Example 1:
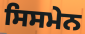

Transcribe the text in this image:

ਸਿਸਮੇਨ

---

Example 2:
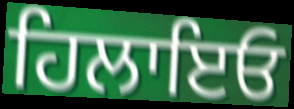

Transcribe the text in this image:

ਹਿਲਾਇਓ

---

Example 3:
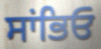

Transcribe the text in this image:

ਸਾਂਭਿਓ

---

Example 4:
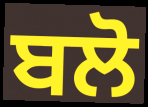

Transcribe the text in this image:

ਬਲੋ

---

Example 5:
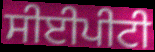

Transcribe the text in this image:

ਸੀਈਪੀਟੀ